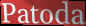
Patoda